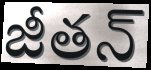
జీతన్